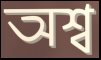
অশ্ব